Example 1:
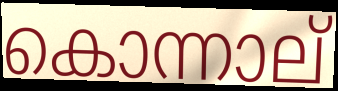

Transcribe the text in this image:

കൊന്നാല്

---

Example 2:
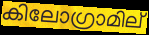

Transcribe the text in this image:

കിലോഗ്രാമില്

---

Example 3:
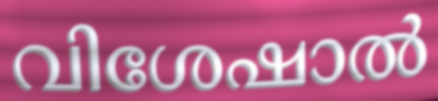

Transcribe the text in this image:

വിശേഷാൽ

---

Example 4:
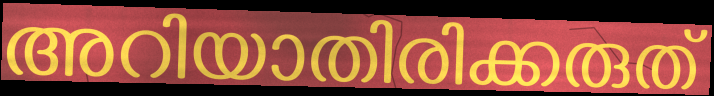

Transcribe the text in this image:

അറിയാതിരിക്കരുത്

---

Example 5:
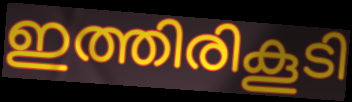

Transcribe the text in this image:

ഇത്തിരികൂടി